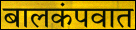
बालकंपवात